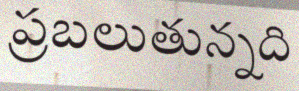
ప్రబలుతున్నది